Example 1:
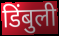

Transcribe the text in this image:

डिंबुली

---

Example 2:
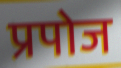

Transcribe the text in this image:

प्रपोज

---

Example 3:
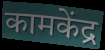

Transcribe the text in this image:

कामकेंद्र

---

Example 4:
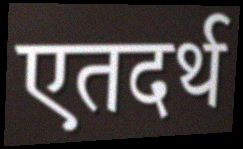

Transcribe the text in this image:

एतदर्थ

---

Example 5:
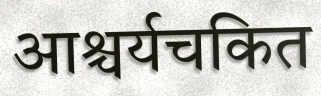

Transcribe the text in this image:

आश्चर्यचकित